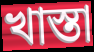
খাস্তা